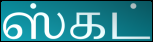
ஸ்கட்